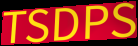
TSDPS